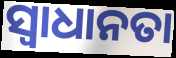
ସ୍ୱାଧାନତା